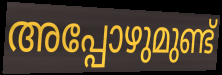
അപ്പോഴുമുണ്ട്